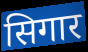
सिगार